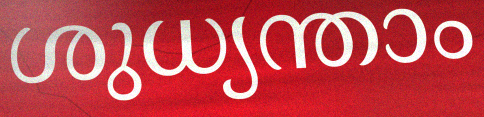
ശുധ്യന്താം